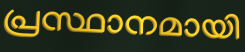
പ്രസ്ഥാനമായി